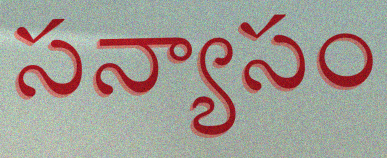
సన్యాసం